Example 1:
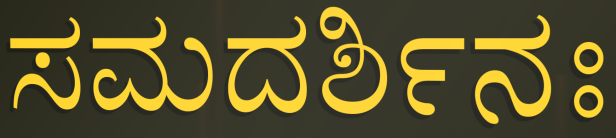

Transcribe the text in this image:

ಸಮದರ್ಶಿನಃ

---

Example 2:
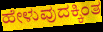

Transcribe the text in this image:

ಹೇಳುವುದಕ್ಕಿಂತ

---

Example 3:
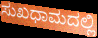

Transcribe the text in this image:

ಸುಖಧಾಮದಲ್ಲಿ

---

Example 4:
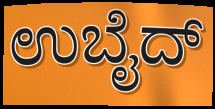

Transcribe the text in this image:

ಉಬೈದ್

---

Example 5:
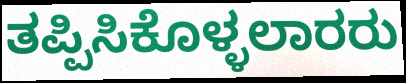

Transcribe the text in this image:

ತಪ್ಪಿಸಿಕೊಳ್ಳಲಾರರು